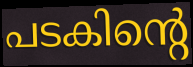
പടകിന്റെ